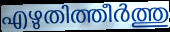
എഴുതിത്തീർത്തു